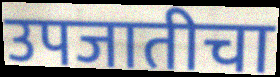
उपजातीचा